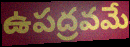
ఉపద్రవమే